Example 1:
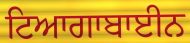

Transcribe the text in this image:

ਟਿਆਗਾਬਾਈਨ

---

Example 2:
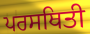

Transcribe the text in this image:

ਪਰਸਥਿਤੀ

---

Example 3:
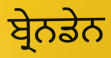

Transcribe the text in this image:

ਬ੍ਰੇਨਡੇਨ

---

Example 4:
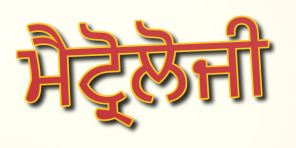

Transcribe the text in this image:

ਮੈਟ੍ਰੋਲੋਜੀ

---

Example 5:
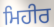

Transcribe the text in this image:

ਮਿਹੀਰ